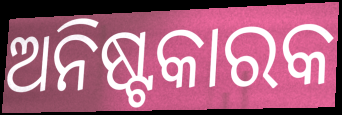
ଅନିଷ୍ଟକାରକ